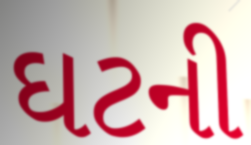
ઘટની